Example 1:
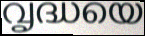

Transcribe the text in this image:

വൃദ്ധയെ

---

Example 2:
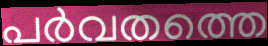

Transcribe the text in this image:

പർവതത്തെ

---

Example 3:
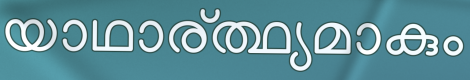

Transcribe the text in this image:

യാഥാര്ത്ഥ്യമാകും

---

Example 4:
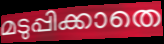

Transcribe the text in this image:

മടുപ്പിക്കാതെ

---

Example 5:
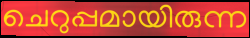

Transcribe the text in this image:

ചെറുപ്പമായിരുന്ന